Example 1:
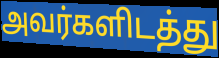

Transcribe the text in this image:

அவர்களிடத்து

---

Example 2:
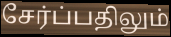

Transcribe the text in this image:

சேர்ப்பதிலும்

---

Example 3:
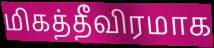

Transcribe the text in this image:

மிகத்தீவிரமாக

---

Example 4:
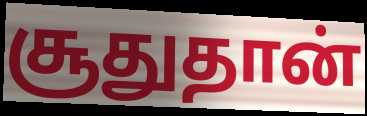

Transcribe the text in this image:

சூதுதான்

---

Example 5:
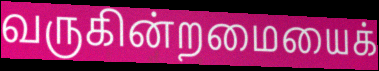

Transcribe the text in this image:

வருகின்றமையைக்